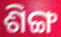
ଶିଙ୍ଗ